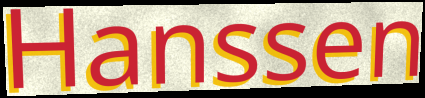
Hanssen